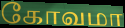
கோவமா